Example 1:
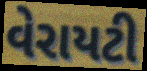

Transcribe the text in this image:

વેરાયટી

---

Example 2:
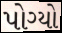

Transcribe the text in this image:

પોગ્યો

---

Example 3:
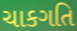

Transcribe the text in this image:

ચાકગતિ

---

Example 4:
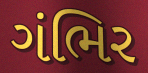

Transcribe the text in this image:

ગંભિર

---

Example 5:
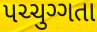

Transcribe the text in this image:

પચ્ચુગ્ગતા